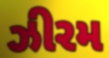
ઝીરમ